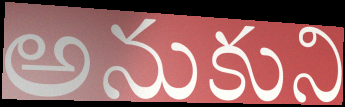
అనుకుని